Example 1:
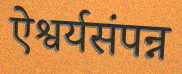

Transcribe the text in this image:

ऐश्वर्यसंपन्न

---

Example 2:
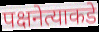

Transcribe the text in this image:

पक्षनेत्याकडे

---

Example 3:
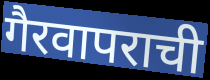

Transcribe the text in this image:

गैरवापराची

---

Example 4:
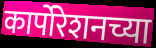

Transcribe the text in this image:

कार्पोरेशनच्या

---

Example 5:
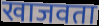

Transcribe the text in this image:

खाजवता